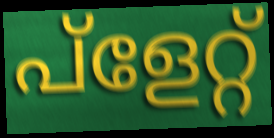
പ്ളേറ്റ്